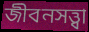
জীবনসত্ত্বা